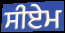
ਸੀਏਮ